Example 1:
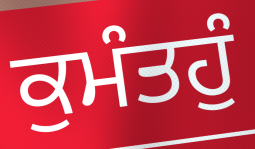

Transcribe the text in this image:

ਕੁਮੰਤਹੁੰ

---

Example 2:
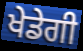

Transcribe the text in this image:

ਖੇਡੇਗੀ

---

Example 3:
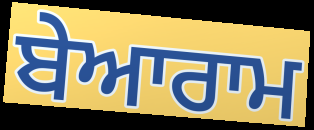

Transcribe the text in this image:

ਬੇਆਰਾਮ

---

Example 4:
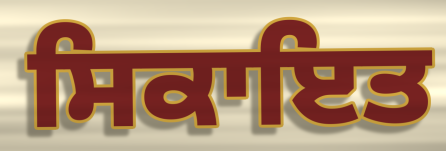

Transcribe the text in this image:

ਸਿਕਾਇਤ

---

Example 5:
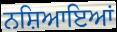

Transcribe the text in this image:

ਨਸ਼ਿਆਇਆਂ